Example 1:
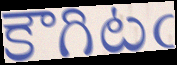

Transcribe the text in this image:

కౌగిటఁ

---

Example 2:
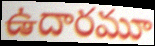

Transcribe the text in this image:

ఉదారమూ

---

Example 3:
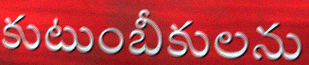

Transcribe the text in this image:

కుటుంబీకులను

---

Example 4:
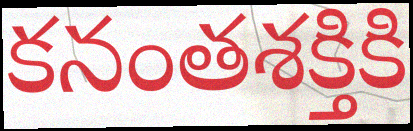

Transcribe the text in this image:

కనంతశక్తికి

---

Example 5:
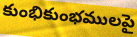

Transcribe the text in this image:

కుంభికుంభములపై